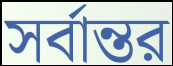
সর্বান্তর